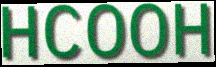
HCOOH